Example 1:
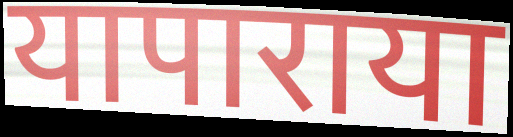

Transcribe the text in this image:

यापाराया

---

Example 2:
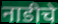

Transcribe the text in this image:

नाडीचे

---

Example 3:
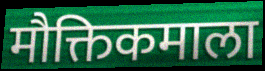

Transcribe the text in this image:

मौक्तिकमाला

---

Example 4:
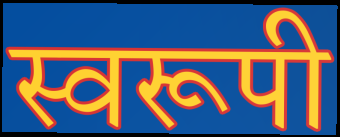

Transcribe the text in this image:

स्वरूपी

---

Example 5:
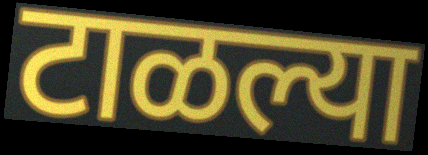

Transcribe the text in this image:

टाळल्या